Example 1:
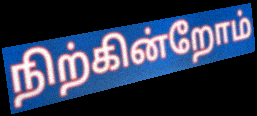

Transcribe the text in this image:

நிற்கின்றோம்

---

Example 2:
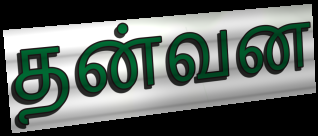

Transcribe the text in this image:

தன்வன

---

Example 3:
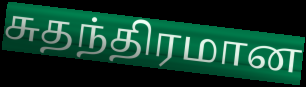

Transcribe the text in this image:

சுதந்திரமான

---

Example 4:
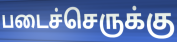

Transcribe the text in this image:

படைச்செருக்கு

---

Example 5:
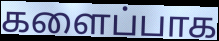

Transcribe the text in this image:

களைப்பாக